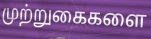
முற்றுகைகளை